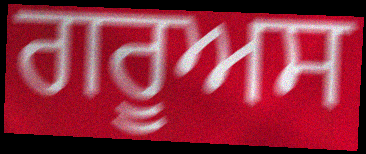
ਗਰੂਅਸ